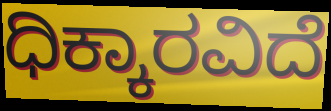
ಧಿಕ್ಕಾರವಿದೆ